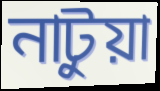
নাটুয়া